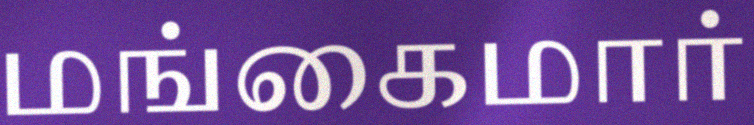
மங்கைமார்